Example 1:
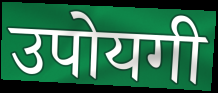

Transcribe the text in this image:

उपोयगी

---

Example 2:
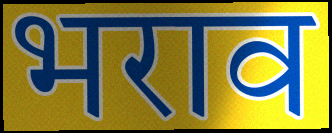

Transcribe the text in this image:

भराव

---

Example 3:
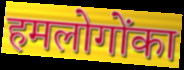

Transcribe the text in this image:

हमलोगोंका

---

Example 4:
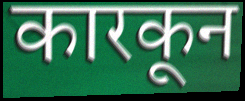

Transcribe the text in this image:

कारकून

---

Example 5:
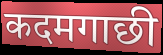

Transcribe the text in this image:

कदमगाछी